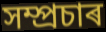
সম্প্ৰচাৰ